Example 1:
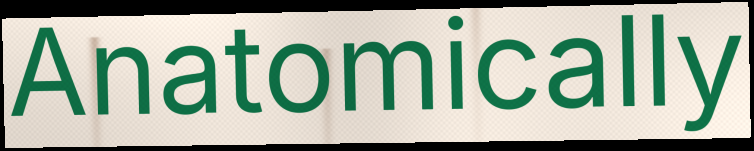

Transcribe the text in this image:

Anatomically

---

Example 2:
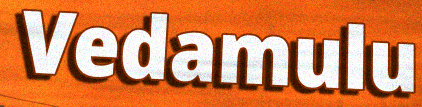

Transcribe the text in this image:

Vedamulu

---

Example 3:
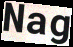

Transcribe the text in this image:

Nag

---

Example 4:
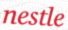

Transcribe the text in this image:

nestle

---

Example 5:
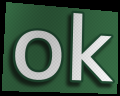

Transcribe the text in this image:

ok